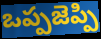
ఒప్పజెప్పి